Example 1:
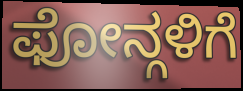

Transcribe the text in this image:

ಫೋನ್ಗಳಿಗೆ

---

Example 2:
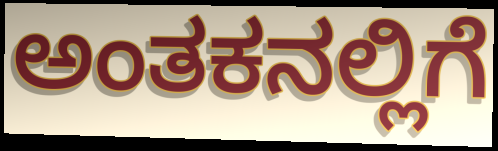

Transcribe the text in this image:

ಅಂತಕನಲ್ಲಿಗೆ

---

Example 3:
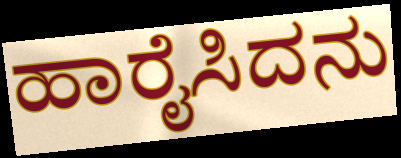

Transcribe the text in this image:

ಹಾರೈಸಿದನು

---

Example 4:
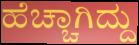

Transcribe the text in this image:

ಹೆಚ್ಚಾಗಿದ್ದು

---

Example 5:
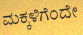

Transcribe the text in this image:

ಮಕ್ಕಳಿಗೆಂದೇ